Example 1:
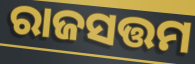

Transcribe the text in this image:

ରାଜସତ୍ତମ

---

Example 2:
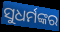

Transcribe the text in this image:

ସୁଧର୍ମଙ୍କର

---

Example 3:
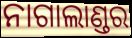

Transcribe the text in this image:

ନାଗାଲାଣ୍ଡର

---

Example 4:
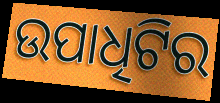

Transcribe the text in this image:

ଉପାଧିଟିର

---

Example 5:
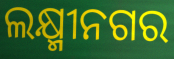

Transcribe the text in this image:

ଲକ୍ଷ୍ମୀନଗର